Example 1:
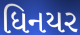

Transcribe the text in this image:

ધિનયર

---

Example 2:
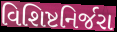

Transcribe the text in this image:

વિશિષ્ટનિર્જરા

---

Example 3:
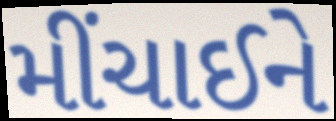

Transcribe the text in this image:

મીંચાઈને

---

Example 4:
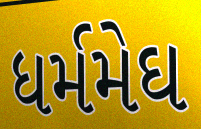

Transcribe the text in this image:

ધર્મમેઘ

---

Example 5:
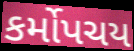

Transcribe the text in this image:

કર્મોપચય